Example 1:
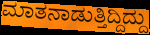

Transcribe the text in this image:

ಮಾತನಾಡುತ್ತಿದ್ದಿದ್ದು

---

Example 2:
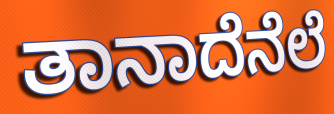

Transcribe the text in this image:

ತಾನಾದೆನೆಲೆ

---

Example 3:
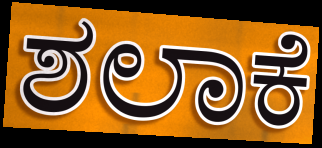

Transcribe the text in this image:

ಶಲಾಕೆ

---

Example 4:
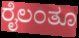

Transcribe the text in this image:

ರೈಲಂತೂ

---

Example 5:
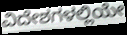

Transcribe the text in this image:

ವಿದೇಶಗಳಲ್ಲಿಯೇ